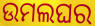
ଉମଲଘର